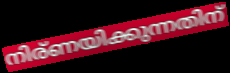
നിര്ണയിക്കുന്നതിന്